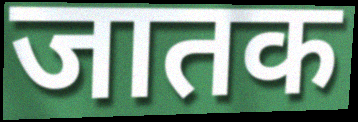
जातक